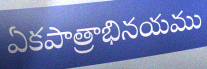
ఏకపాత్రాభినయము